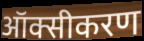
ऑक्सीकरण